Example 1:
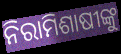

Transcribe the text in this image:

ନିରାମିଶାଷୀଙ୍କୁ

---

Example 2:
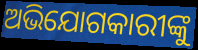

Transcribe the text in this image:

ଅଭିଯୋଗକାରୀଙ୍କୁ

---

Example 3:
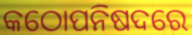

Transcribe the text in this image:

କଠୋପନିଷଦରେ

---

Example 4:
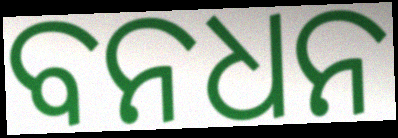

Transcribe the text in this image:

ବନଧନ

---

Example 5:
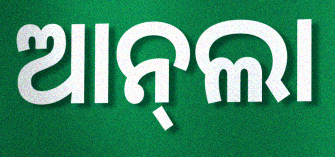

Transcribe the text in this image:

ଆନ୍‌ଲା